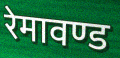
रेमावण्ड